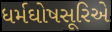
ધર્મઘોષસૂરિએ